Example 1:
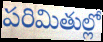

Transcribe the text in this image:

పరిమితుల్లో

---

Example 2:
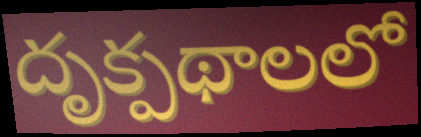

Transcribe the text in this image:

దృక్పథాలలో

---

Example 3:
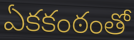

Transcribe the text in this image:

ఏకకంఠంతో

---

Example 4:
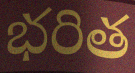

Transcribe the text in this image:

భరిత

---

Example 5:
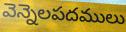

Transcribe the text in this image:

వెన్నెలపదములు